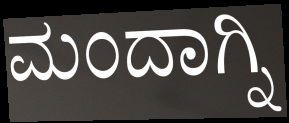
ಮಂದಾಗ್ನಿ